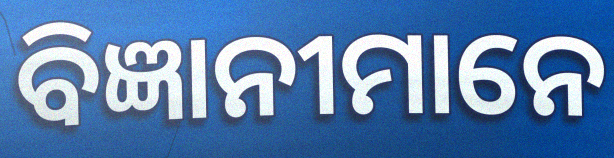
ବିଜ୍ଞାନୀମାନେ